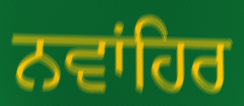
ਨਵਾਂਹਿਰ